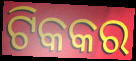
ଟିକକର